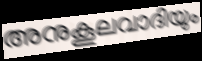
അനുകൂലവാദിയും